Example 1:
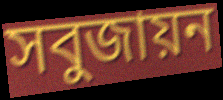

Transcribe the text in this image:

সবুজায়ন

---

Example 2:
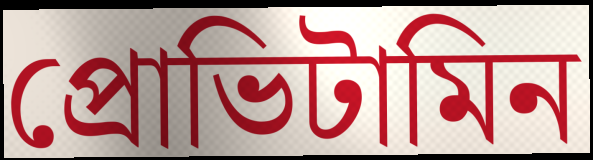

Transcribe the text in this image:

প্রোভিটামিন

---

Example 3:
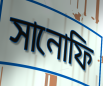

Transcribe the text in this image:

সানোফি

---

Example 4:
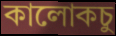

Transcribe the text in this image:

কালোকচু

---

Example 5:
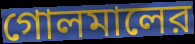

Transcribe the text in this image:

গোলমালের